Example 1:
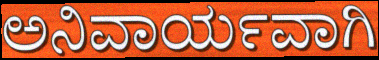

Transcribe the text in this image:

ಅನಿವಾರ್ಯವಾಗಿ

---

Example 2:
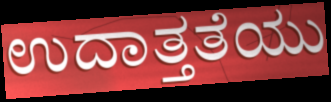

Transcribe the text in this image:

ಉದಾತ್ತತೆಯು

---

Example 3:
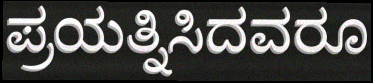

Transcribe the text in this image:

ಪ್ರಯತ್ನಿಸಿದವರೂ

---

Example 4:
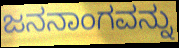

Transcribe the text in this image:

ಜನನಾಂಗವನ್ನು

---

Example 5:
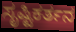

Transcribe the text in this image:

ಸೃಷ್ಟಿಕರ್ತನ